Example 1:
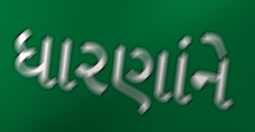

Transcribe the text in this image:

ધારણાંને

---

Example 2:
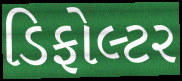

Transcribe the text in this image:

ડિફોલ્ટર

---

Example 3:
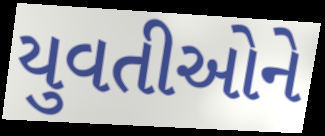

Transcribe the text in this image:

યુવતીઓને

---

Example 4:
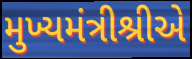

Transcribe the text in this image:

મુખ્યમંત્રીશ્રીએ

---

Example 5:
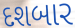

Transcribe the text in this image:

દશબાર